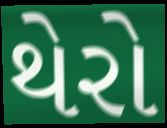
થેરો